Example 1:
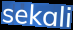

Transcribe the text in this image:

sekali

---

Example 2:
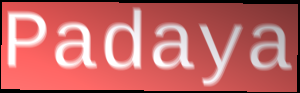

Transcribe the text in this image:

Padaya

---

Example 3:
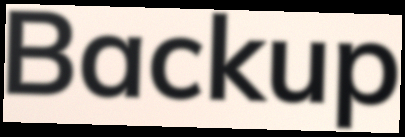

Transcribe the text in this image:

Backup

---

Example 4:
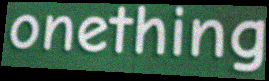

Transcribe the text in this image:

onething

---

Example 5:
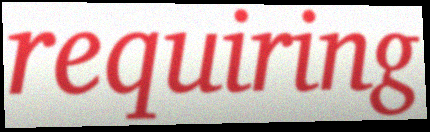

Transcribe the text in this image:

requiring